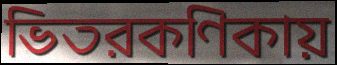
ভিতরকণিকায়